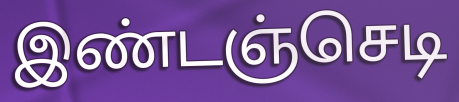
இண்டஞ்செடி